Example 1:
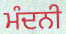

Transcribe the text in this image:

ਮੰਦਨੀ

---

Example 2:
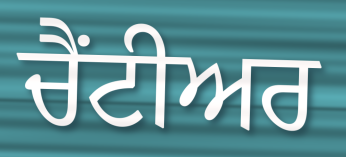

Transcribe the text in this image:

ਚੈਂਟੀਅਰ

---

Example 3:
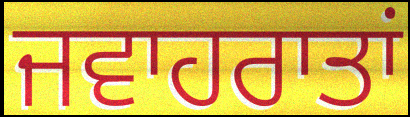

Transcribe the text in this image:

ਜਵਾਹਰਾਤਾਂ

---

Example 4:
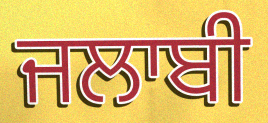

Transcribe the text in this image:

ਜਲਾਬੀ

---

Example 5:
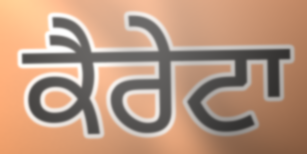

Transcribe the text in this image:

ਕੈਰੇਟਾ